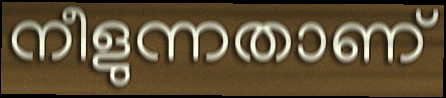
നീളുന്നതാണ്